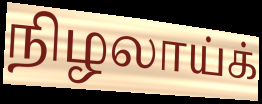
நிழலாய்க்